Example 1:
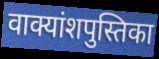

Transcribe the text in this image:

वाक्यांशपुस्तिका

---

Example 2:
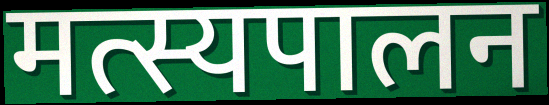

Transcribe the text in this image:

मत्स्यपालन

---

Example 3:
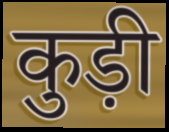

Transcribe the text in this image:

कुड़ी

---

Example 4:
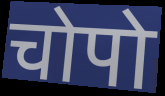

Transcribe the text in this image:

चोपो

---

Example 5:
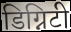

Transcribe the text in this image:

डिग्निटी